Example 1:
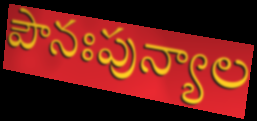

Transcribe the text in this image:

పౌనఃపున్యాల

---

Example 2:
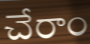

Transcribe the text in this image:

చేరాం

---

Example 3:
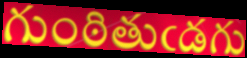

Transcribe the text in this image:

గుంఠితుఁడగు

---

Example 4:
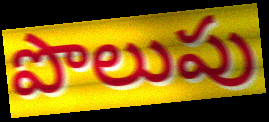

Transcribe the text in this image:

పొలుపు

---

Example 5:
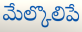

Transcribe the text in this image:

మేల్కొలిపే